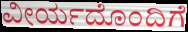
ವೀರ್ಯದೊಂದಿಗೆ